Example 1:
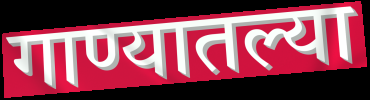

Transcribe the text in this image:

गाण्यातल्या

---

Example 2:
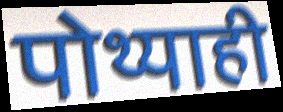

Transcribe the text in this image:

पोथ्याही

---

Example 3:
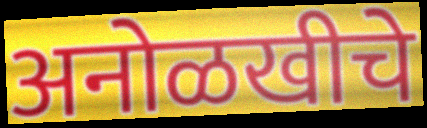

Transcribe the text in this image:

अनोळखीचे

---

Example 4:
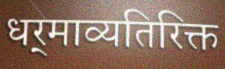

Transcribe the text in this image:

धर्माव्यतिरिक्त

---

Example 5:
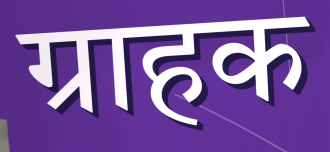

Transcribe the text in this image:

ग्राहक